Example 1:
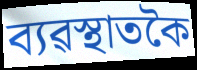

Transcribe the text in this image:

ব্যৱস্থাতকৈ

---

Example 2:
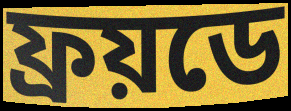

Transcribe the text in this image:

ফ্ৰয়ডে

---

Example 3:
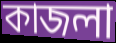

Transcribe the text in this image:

কাজলা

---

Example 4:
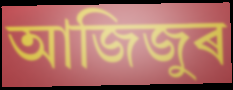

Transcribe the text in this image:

আজিজুৰ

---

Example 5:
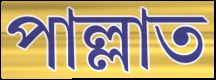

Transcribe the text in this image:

পাল্লাত